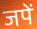
जपें